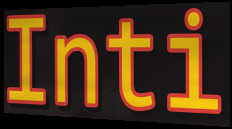
Inti